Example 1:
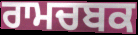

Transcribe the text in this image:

ਰਾਮਚਬਕ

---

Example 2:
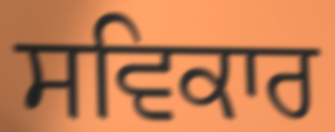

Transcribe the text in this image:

ਸਵਿਕਾਰ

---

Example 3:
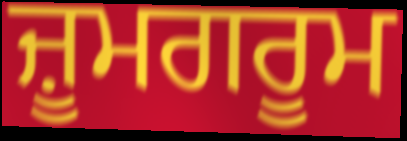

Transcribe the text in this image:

ਜ਼ੂਮਗਰੂਮ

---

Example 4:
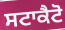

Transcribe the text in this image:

ਸਟਾਕੈਟੋ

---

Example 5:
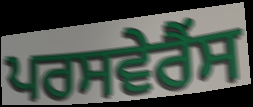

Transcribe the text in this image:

ਪਰਸਵੇਰੈਂਸ